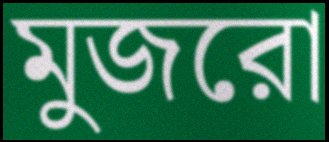
মুজরো